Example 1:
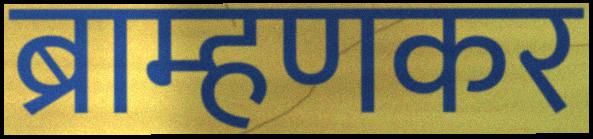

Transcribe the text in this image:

ब्राम्हणकर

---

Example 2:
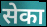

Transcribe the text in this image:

सेका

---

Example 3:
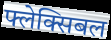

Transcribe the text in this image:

फ्लेक्सिबल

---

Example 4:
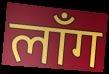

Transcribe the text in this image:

लाँग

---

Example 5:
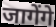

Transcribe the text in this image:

जागेंगे